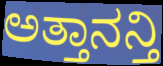
ಅತ್ತಾನನ್ತಿ